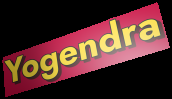
Yogendra